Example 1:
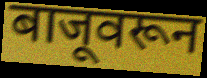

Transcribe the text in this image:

बाजूवरून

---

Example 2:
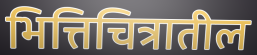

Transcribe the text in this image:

भित्तिचित्रातील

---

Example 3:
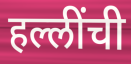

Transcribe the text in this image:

हल्लींची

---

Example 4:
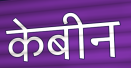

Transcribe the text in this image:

केबीन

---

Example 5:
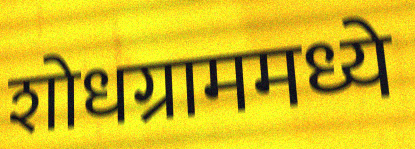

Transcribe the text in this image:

शोधग्राममध्ये